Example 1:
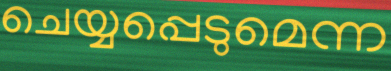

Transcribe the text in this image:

ചെയ്യപ്പെടുമെന്ന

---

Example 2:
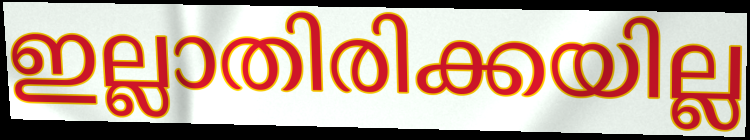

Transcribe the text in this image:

ഇല്ലാതിരിക്കയില്ല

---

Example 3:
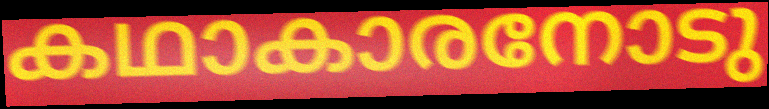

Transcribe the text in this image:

കഥാകാരനോടു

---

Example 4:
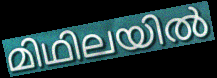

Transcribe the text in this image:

മിഥിലയിൽ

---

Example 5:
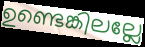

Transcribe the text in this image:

ഉണ്ടെങ്കിലല്ലേ